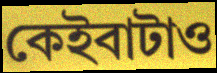
কেইবাটাও